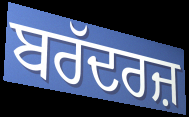
ਬਰੱਦਰਜ਼